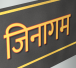
जिनागम